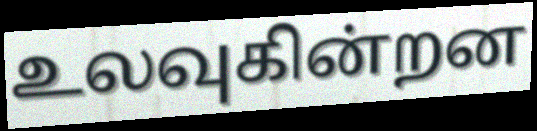
உலவுகின்றன